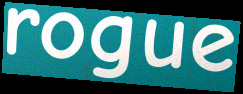
rogue